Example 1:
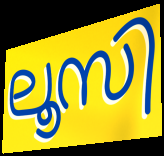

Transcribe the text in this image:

ലൂസി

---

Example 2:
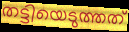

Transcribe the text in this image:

തട്ടിയെടുത്തത്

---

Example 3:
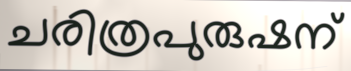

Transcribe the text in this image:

ചരിത്രപുരുഷന്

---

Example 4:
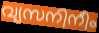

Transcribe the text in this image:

വ്യസനിനീം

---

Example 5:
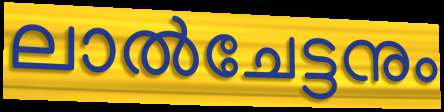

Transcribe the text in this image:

ലാൽചേട്ടനും